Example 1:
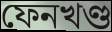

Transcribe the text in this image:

ফেনখণ্ড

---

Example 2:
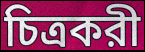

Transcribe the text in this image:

চিত্রকরী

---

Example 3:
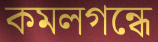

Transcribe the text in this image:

কমলগন্ধে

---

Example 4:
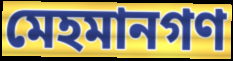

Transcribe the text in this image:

মেহমানগণ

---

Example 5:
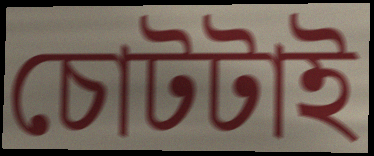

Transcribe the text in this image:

চোটটাই